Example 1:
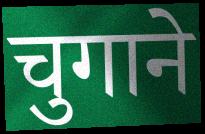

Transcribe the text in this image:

चुगाने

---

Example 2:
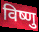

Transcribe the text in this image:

विष्णु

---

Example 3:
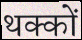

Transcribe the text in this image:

थक्कों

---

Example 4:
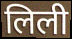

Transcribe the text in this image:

लिली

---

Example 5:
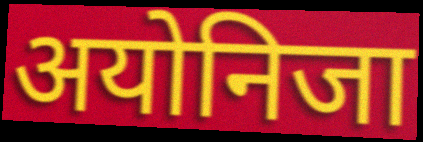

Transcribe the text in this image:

अयोनिजा